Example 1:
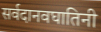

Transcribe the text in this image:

सर्वदानवघातिनी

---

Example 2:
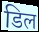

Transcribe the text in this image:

डिल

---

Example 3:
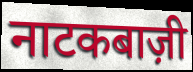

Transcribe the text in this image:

नाटकबाज़ी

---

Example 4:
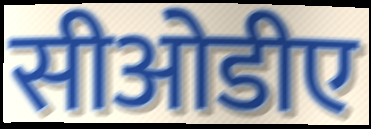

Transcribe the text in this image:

सीओडीए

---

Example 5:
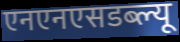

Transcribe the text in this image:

एनएनएसडब्ल्यू